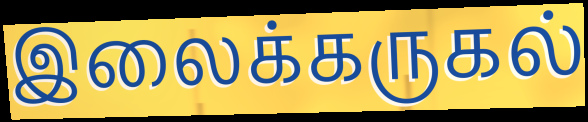
இலைக்கருகல்